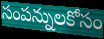
సంపన్నులకోసం